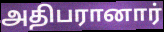
அதிபரானார்